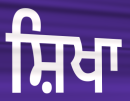
ਸ਼ਿਖਾ